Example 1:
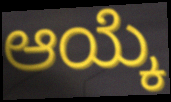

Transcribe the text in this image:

ಆಯ್ಕೆ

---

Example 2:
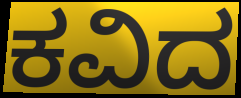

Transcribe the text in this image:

ಕವಿದ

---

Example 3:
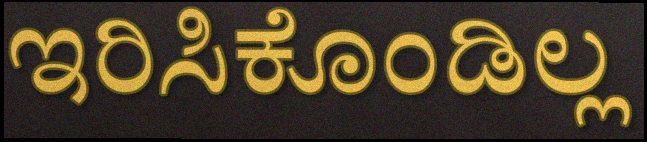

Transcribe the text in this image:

ಇರಿಸಿಕೊಂಡಿಲ್ಲ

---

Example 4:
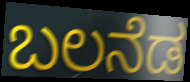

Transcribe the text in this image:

ಬಲನೆಡ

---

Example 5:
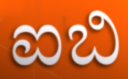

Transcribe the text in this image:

ಐಬಿ